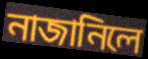
নাজানিলে